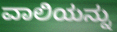
ವಾಲಿಯನ್ನು